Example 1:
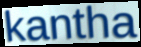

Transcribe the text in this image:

kantha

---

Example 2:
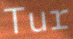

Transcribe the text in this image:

Tur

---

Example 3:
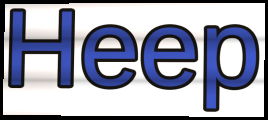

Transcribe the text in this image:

Heep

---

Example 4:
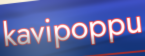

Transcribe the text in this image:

kavipoppu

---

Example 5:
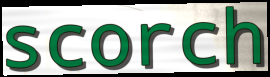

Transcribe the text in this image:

scorch